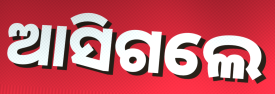
ଆସିଗଲେ